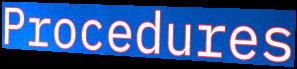
Procedures